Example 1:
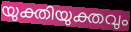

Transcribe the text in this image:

യുക്തിയുക്തവും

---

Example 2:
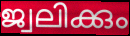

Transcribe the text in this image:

ജ്വലിക്കും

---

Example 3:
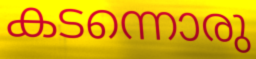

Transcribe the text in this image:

കടന്നൊരു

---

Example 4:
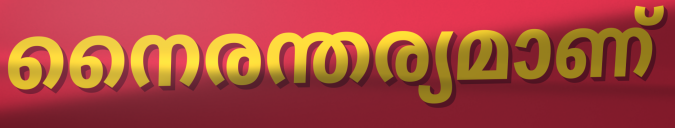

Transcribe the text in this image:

നൈരന്തര്യമാണ്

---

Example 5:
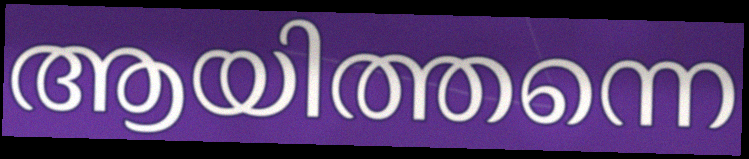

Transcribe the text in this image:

ആയിത്തന്നെ